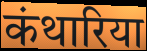
कंथारिया